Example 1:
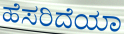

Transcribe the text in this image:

ಹೆಸರಿದೆಯಾ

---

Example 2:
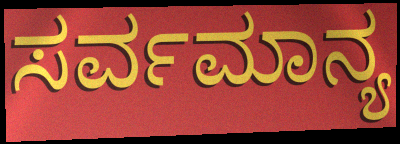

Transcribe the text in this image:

ಸರ್ವಮಾನ್ಯ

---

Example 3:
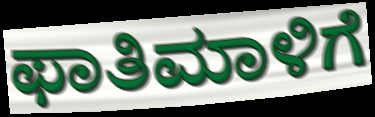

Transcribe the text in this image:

ಫಾತಿಮಾಳಿಗೆ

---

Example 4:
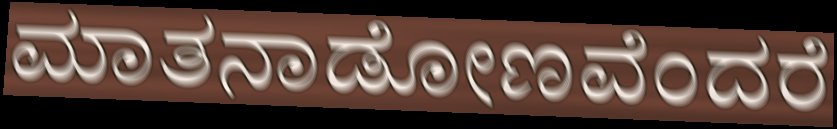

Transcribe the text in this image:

ಮಾತನಾಡೋಣವೆಂದರೆ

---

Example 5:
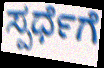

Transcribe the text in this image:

ಸ್ಪರ್ಧೆಗೆ